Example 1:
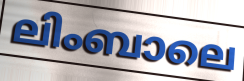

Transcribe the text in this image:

ലിംബാലെ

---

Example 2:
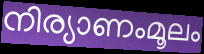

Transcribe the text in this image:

നിര്യാണംമൂലം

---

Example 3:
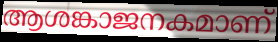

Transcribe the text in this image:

ആശങ്കാജനകമാണ്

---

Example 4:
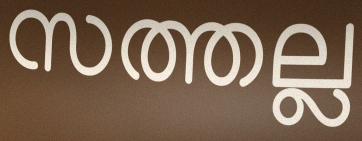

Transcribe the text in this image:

സത്തല്ല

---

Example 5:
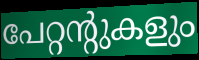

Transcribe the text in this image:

പേറ്റന്റുകളും